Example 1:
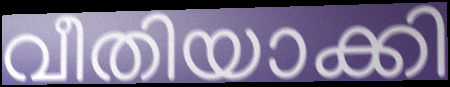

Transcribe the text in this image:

വീതിയാക്കി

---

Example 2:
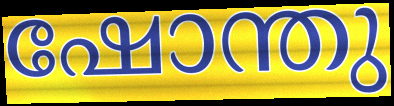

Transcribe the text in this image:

ഷോന്തു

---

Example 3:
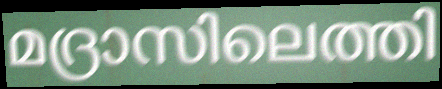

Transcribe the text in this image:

മദ്രാസിലെത്തി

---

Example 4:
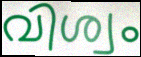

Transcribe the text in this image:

വിശ്വം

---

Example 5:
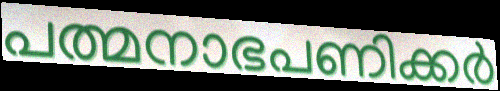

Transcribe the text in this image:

പത്മനാഭപണിക്കർ